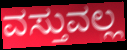
ವಸ್ತುವಲ್ಲ